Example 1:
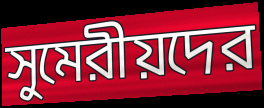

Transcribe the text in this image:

সুমেরীয়দের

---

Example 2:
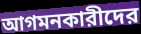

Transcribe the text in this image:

আগমনকারীদের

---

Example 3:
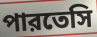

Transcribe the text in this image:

পারতেসি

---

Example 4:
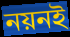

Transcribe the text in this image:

নয়নই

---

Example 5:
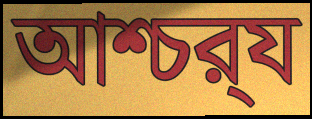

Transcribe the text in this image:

আশ্চর্‍য